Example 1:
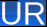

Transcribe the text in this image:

UR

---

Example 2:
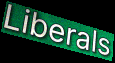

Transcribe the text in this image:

Liberals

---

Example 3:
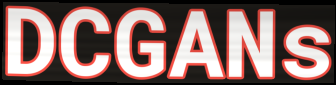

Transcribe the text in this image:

DCGANs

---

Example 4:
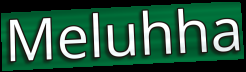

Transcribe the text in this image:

Meluhha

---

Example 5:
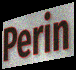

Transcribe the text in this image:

Perin